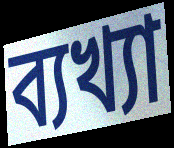
ব্যখ্যা